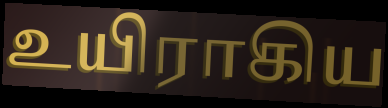
உயிராகிய